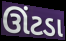
ઊંટડા